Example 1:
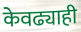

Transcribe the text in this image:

केवढ्याही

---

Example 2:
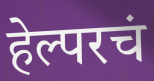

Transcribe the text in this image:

हेल्परचं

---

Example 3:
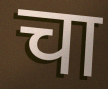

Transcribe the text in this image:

चा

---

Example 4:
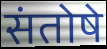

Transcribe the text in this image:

संतोषे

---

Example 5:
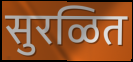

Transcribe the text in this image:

सुरळित